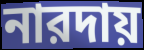
নারদায়